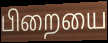
பிறையை